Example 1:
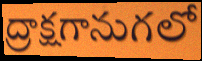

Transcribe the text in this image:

ద్రాక్షగానుగలో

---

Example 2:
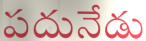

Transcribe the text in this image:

పదునేడు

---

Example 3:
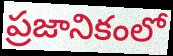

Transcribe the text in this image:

ప్రజానికంలో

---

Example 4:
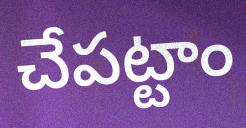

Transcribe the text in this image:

చేపట్టాం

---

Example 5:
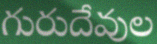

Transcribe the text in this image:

గురుదేవుల